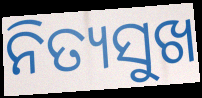
ନିତ୍ୟସୁଖ